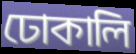
ঢোকালি